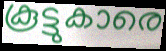
കൂട്ടുകാരെ